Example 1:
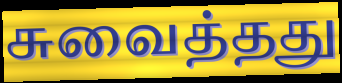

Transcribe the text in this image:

சுவைத்தது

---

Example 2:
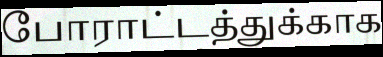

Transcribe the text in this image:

போராட்டத்துக்காக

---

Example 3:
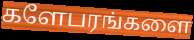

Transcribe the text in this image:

களேபரங்களை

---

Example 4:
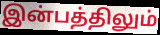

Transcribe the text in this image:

இன்பத்திலும்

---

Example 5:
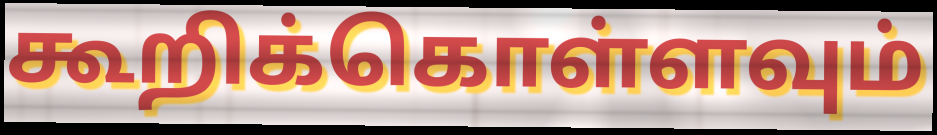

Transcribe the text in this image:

கூறிக்கொள்ளவும்